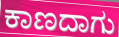
ಕಾಣದಾಗು